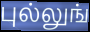
புல்லுங்